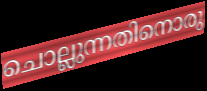
ചൊല്ലുന്നതിനൊരു